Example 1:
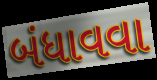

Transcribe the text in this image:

બંધાવવા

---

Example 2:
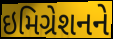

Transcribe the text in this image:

ઇમિગ્રેશનને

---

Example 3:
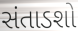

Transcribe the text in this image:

સંતાડશો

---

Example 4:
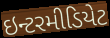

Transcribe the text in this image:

ઇન્ટરમીડિયેટ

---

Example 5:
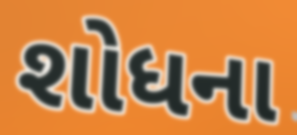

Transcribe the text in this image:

શોધના